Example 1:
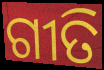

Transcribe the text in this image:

ଗୀତି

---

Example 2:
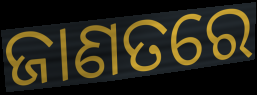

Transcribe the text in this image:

ଜାଣତରେ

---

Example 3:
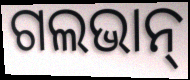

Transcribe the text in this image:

ଗଲଭାନ୍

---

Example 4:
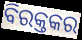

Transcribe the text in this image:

ବିରକ୍ତକର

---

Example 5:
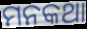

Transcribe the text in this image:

ମନକଥା